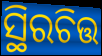
ସ୍ଥିରଚିତ୍ତ